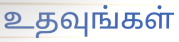
உதவுங்கள்